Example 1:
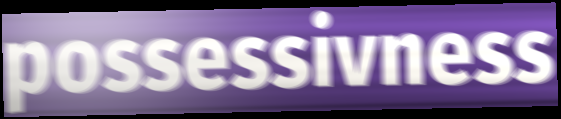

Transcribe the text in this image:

possessivness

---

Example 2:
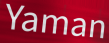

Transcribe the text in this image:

Yaman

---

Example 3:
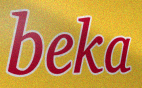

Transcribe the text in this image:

beka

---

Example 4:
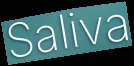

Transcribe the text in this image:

Saliva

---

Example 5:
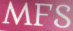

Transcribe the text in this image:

MFS